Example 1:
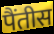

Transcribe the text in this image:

पैंतीस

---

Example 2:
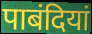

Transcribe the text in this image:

पाबंदियां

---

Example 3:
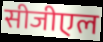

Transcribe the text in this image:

सीजीएल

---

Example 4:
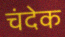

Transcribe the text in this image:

चंदेक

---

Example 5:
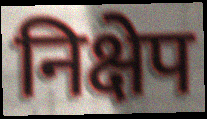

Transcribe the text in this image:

निक्षेप